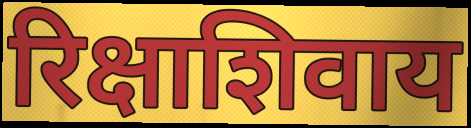
रिक्षाशिवाय